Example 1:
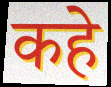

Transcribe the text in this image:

कहे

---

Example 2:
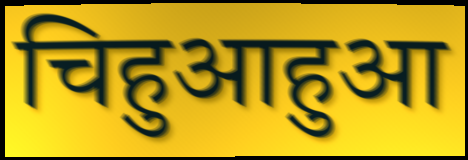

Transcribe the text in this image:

चिहुआहुआ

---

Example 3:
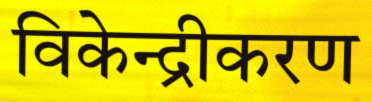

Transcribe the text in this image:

विकेन्द्रीकरण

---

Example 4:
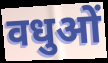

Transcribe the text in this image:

वधुओं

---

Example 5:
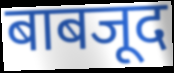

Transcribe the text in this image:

बाबजूद